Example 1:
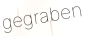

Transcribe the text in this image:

gegraben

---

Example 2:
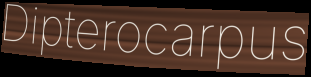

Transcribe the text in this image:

Dipterocarpus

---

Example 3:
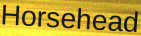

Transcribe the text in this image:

Horsehead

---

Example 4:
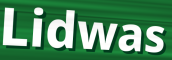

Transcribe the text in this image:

Lidwas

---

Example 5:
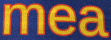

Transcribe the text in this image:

mea